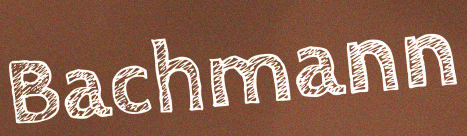
Bachmann